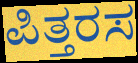
ಪಿತ್ತರಸ